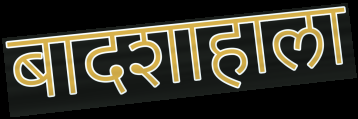
बादशाहाला